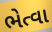
ભેત્વા